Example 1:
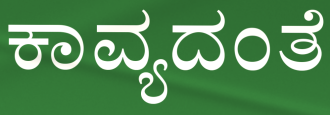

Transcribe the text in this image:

ಕಾವ್ಯದಂತೆ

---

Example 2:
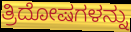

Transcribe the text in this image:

ತ್ರಿದೋಷಗಳನ್ನು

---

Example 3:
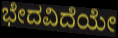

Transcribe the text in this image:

ಭೇದವಿದೆಯೇ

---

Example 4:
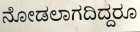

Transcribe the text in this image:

ನೋಡಲಾಗದಿದ್ದರೂ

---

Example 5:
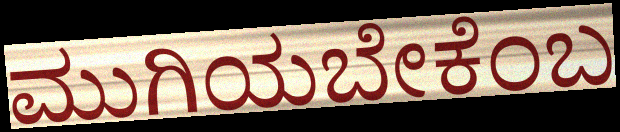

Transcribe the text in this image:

ಮುಗಿಯಬೇಕೆಂಬ